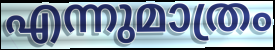
എന്നുമാത്രം